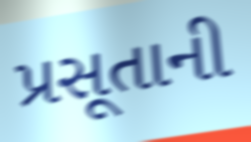
પ્રસૂતાની